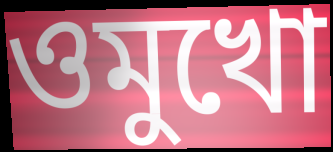
ওমুখো